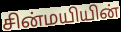
சின்மயியின்